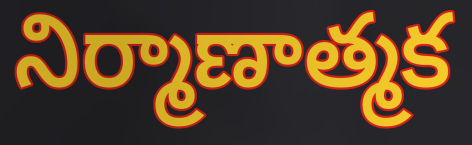
నిర్మాణాత్మక